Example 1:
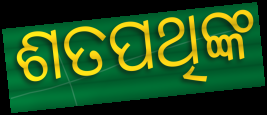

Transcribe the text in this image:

ଶତପଥିଙ୍କ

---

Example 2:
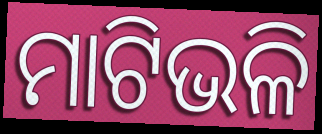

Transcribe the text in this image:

ମାଟିଭଳି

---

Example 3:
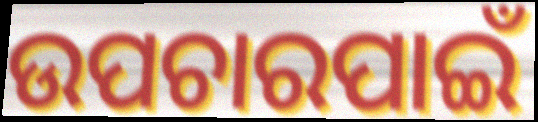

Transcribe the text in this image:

ଉପଚାରପାଇଁ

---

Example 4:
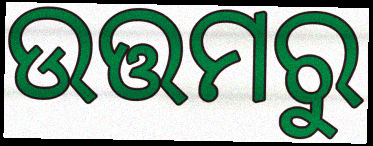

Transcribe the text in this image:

ଉତ୍ତମରୁ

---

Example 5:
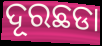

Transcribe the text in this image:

ଦୂରଛଡା